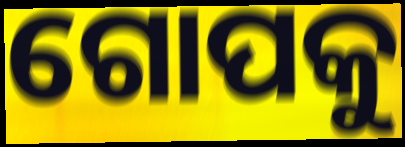
ଗୋପକୁ